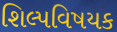
શિલ્પવિષયક